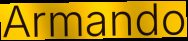
Armando